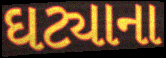
ઘટ્યાના